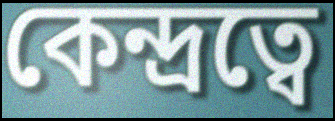
কেন্দ্রত্বে